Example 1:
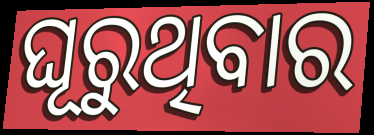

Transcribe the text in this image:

ଘୂରୁଥିବାର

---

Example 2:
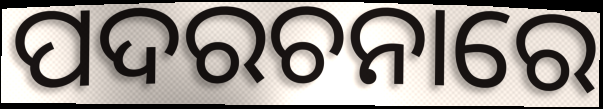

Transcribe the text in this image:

ପଦରଚନାରେ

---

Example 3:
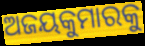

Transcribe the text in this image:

ଅଜୟକୁମାରକୁ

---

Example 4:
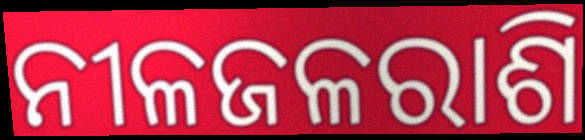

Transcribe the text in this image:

ନୀଳଜଳରାଶି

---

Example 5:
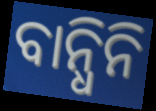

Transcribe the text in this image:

ବାନ୍ଧିନି